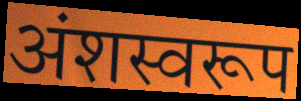
अंशस्वरूप